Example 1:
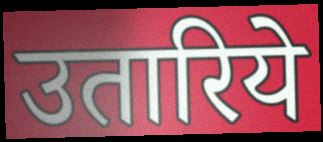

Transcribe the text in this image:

उतारिये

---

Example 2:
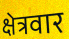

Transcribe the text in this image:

क्षेत्रवार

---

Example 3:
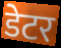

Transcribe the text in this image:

डेटर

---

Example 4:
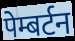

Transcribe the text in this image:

पेम्बर्टन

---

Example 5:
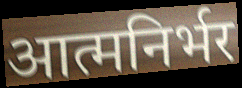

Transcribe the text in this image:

आत्मनिर्भर